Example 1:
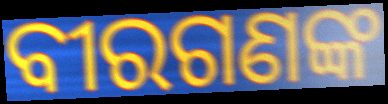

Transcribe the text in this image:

ବୀରଗଣଙ୍କ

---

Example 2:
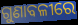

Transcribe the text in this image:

ଗୁଣାବଳୀରେ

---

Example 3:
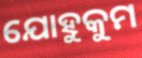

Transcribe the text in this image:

ଯୋହୁକୁମ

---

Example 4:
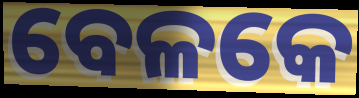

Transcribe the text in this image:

ବେଳକେ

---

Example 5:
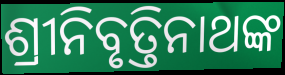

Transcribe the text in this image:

ଶ୍ରୀନିବୃତ୍ତିନାଥଙ୍କ